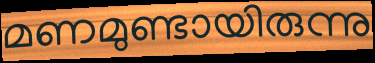
മണമുണ്ടായിരുന്നു